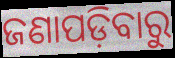
ଜଣାପଡ଼ିବାରୁ